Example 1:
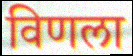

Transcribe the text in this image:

विणला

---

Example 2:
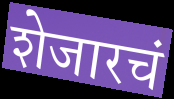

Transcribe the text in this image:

शेजारचं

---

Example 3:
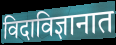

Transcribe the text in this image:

विदाविज्ञानात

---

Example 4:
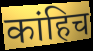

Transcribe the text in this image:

कांहिच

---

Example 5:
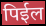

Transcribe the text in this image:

पिईल